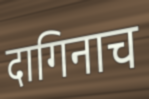
दागिनाच